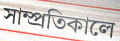
সাম্প্রতিকালে